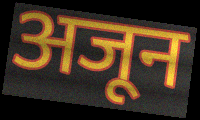
अजून